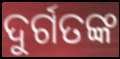
ଦୁର୍ଗତଙ୍କ